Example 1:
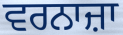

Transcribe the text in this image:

ਵਰਨਾਜ਼ਾ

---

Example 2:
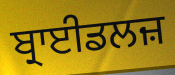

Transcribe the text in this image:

ਬ੍ਰਾਈਡਲਜ਼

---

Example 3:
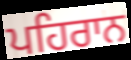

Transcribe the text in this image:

ਪਹਿਰਾਨ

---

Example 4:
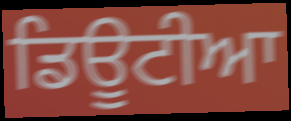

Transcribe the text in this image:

ਡਿਊਟੀਆ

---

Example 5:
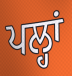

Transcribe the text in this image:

ਪਲ੍ਹਾਂ